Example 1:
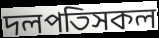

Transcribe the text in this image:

দলপতিসকল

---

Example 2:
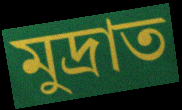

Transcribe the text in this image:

মুদ্ৰাত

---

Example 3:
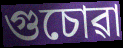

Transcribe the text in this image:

গুচোৱা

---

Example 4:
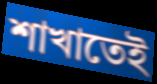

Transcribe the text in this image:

শাখাতেই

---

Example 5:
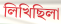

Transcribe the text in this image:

লিখিছিলা